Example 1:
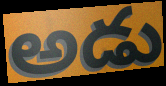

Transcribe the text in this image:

అడు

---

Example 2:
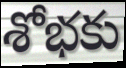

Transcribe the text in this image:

శోభకు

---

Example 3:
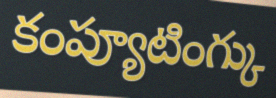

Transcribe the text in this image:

కంప్యూటింగ్కు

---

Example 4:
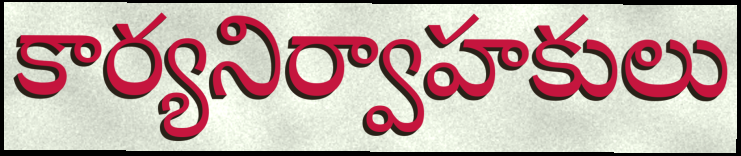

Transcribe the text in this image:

కార్యనిర్వాహకులు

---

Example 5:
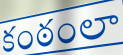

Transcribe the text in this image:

కంఠంలా